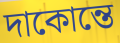
দাকোন্তে